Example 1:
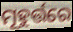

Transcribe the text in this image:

ମୂହୁର୍ତ୍ତରେ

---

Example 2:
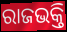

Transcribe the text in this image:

ରାଜଭକ୍ତି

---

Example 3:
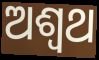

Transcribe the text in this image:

ଅଶ୍ବଥ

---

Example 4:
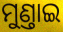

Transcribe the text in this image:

ମୁଣ୍ତାଇ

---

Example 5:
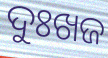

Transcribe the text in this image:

ଦୁଃଖଜ